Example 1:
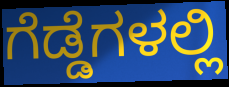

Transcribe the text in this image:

ಗೆಡ್ಡೆಗಳಲ್ಲಿ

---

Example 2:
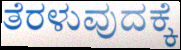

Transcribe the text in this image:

ತೆರಳುವುದಕ್ಕೆ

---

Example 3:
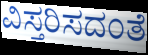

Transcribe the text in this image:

ವಿಸ್ತರಿಸದಂತೆ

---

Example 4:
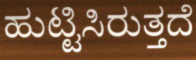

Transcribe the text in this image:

ಹುಟ್ಟಿಸಿರುತ್ತದೆ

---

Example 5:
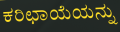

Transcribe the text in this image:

ಕರಿಛಾಯೆಯನ್ನು